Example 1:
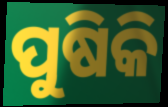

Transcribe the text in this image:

ପୁଷିକି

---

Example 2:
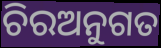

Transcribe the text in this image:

ଚିରଅନୁଗତ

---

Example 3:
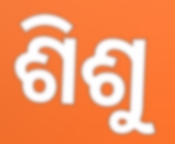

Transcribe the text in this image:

ଶିଶୁ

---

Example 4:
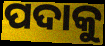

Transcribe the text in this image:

ପଦାକୁ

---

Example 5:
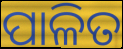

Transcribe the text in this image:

ପାଳିତ